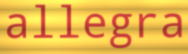
allegra